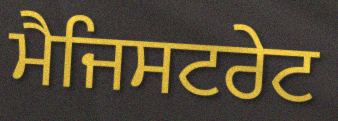
ਮੈਜਿਸਟਰੇਟ